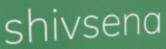
shivsena